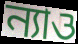
ন্যাও